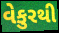
વેકુરથી